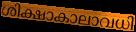
ശിക്ഷാകാലാവധി